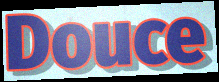
Douce